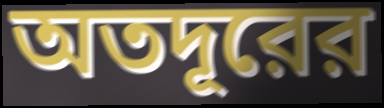
অতদূরের